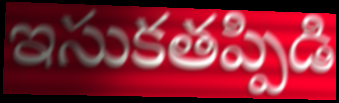
ఇసుకతప్పిడి